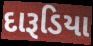
દારૂડિયા